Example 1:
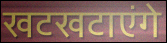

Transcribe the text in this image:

खटखटाएंगे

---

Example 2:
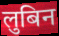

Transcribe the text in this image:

लुबिन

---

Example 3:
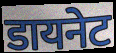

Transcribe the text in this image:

डायनेट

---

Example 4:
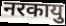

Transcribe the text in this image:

नरकायु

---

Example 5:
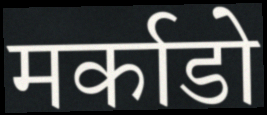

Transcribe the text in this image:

मर्काडो